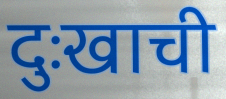
दुःखाची